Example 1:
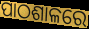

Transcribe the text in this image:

ପାଠଶାଳରେ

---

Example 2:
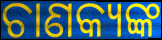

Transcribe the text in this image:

ଚାଣକ୍ୟଙ୍କ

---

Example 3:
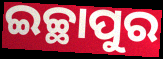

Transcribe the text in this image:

ଇଚ୍ଛାପୁର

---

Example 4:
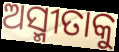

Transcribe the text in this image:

ଅସ୍ମୀତାକୁ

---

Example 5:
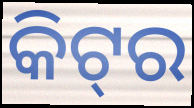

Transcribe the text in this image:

କିଟ୍‌ର